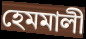
হেমমালী